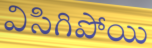
విసిగిపోయి